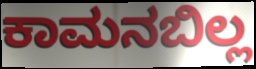
ಕಾಮನಬಿಲ್ಲ